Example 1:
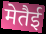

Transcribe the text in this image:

मेतैई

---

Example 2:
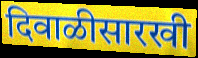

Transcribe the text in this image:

दिवाळीसारखी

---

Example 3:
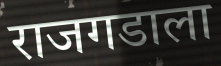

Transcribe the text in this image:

राजगडाला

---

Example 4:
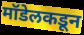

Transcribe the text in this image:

मॉडेलकडून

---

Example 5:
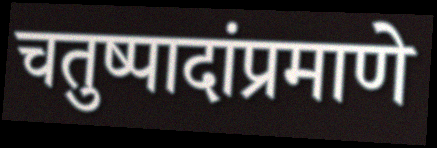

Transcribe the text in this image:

चतुष्पादांप्रमाणे